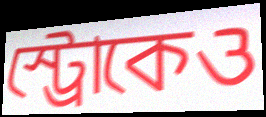
স্ট্রোকেও